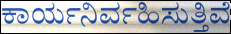
ಕಾರ್ಯನಿರ್ವಹಿಸುತ್ತಿವೆ